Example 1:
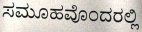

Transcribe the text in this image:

ಸಮೂಹವೊಂದರಲ್ಲಿ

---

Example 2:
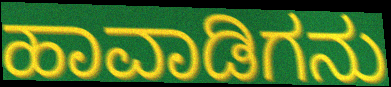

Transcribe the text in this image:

ಹಾವಾಡಿಗನು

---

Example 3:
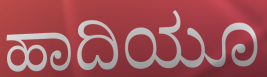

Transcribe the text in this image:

ಹಾದಿಯೂ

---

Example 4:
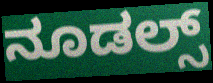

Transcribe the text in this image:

ನೂಡಲ್ಸ್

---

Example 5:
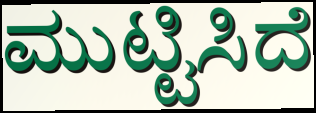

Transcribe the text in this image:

ಮುಟ್ಟಿಸಿದೆ